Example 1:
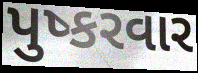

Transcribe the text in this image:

પુષ્કરવાર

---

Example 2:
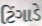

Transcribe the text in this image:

ટિંગાડે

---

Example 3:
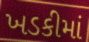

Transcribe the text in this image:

ખડકીમાં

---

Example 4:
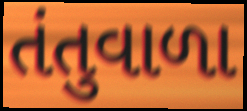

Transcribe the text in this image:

તંતુવાળા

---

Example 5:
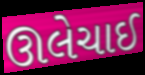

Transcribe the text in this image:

ઊલેચાઈ